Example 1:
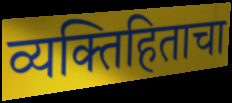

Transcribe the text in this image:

व्यक्तिहिताचा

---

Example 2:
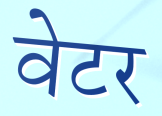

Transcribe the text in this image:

वेटर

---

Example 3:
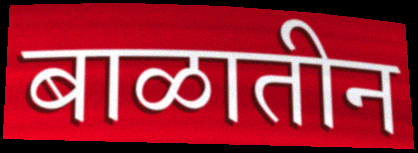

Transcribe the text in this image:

बाळातीन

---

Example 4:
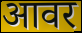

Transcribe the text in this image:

आवर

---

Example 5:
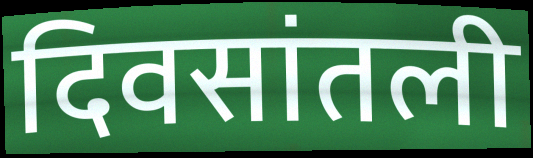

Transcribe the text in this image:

दिवसांतली